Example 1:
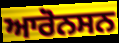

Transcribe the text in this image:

ਆਰੋਨਸਨ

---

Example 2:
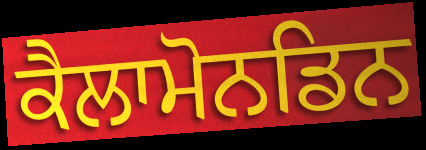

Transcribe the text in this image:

ਕੈਲਾਮੋਨਡਿਨ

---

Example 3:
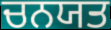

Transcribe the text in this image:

ਚਨਯਤ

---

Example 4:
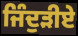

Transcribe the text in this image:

ਜਿੰਦੁੜੀਏ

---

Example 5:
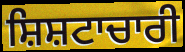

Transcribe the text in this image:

ਸ਼ਿਸ਼ਟਾਚਾਰੀ